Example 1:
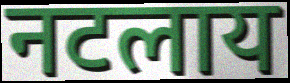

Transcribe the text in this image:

नटलाय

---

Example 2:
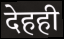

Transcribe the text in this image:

देहही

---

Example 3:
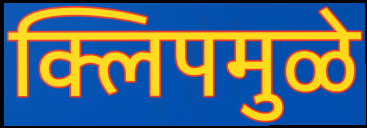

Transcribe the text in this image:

क्लिपमुळे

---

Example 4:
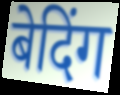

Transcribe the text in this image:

बेदिंग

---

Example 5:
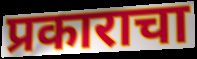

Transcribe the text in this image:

प्रकाराचा